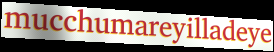
mucchumareyilladeye